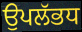
ਉਪਲੱਭਧ